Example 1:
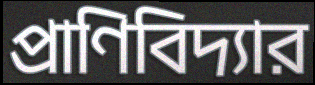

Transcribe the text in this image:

প্রাণিবিদ্যার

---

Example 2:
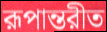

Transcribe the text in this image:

রূপান্তরীত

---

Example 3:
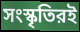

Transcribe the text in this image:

সংস্কৃতিরই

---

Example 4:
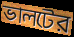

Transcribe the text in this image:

ভালটের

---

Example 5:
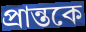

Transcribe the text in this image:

প্রান্তকে